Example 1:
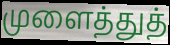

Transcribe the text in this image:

முளைத்துத்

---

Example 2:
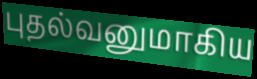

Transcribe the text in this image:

புதல்வனுமாகிய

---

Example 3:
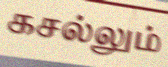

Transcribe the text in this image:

கசல்லும்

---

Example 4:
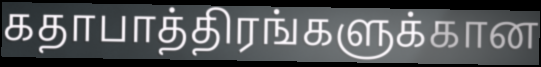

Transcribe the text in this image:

கதாபாத்திரங்களுக்கான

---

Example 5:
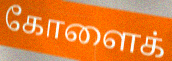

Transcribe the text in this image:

கோளைக்